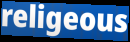
religeous